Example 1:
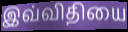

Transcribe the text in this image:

இவ்விதியை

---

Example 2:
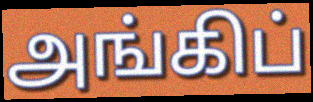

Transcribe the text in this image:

அங்கிப்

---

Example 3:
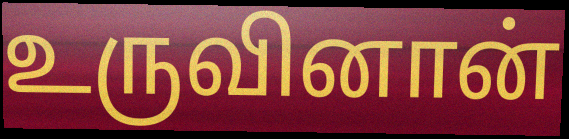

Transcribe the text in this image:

உருவினான்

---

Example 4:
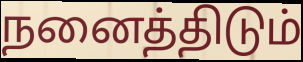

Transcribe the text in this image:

நனைத்திடும்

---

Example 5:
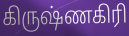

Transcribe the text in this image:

கிருஷ்ணகிரி